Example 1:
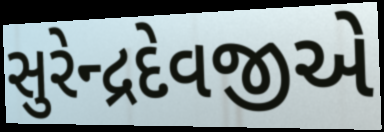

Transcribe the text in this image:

સુરેન્દ્રદેવજીએ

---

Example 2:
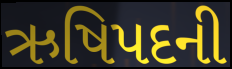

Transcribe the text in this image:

ઋષિપદની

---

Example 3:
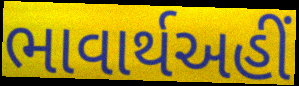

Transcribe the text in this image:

ભાવાર્થઅહીં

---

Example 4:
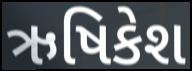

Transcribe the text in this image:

ઋષિકેશ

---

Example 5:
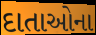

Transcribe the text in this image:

દાતાઓના